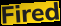
Fired